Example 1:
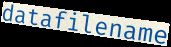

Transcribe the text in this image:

datafilename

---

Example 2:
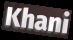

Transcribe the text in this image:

Khani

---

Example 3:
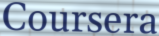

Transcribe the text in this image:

Coursera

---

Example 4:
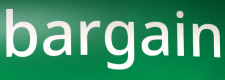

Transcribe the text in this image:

bargain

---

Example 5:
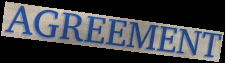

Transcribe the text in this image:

AGREEMENT